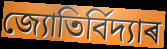
জ্যোতিৰ্বিদ্যাৰ